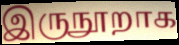
இருநூறாக